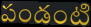
పండంటి